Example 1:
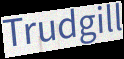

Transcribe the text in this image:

Trudgill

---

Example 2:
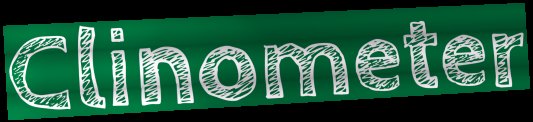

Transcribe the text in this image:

Clinometer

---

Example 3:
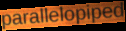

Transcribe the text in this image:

parallelopiped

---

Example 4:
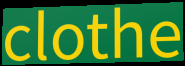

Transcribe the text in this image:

clothe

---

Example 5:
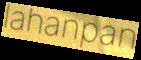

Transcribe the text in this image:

lahanpan